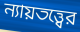
ন্যায়তত্ত্বের